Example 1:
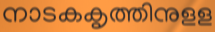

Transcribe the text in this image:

നാടകകൃത്തിനുളള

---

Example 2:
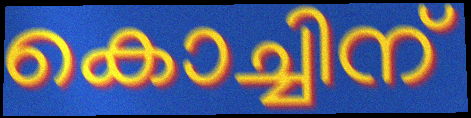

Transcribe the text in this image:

കൊച്ചിന്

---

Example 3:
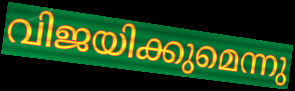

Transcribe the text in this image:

വിജയിക്കുമെന്നു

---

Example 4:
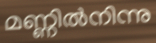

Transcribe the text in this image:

മണ്ണിൽനിന്നു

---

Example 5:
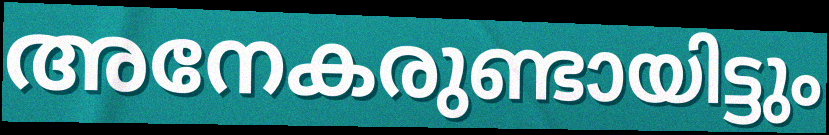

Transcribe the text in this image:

അനേകരുണ്ടായിട്ടും